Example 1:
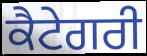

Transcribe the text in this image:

ਕੈਟੇਗਰੀ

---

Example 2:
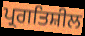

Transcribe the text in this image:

ਪ੍ਰਗਤਿਸ਼ੀਲ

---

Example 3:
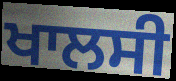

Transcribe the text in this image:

ਖਾਲਸੀ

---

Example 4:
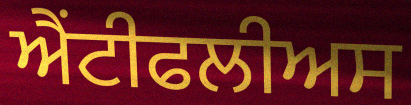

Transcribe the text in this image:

ਐਂਟੀਫਲੀਅਸ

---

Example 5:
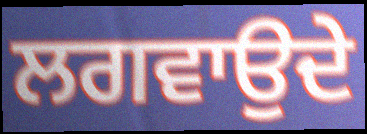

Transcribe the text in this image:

ਲਗਵਾਉਦੇ